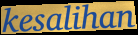
kesalihan